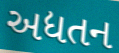
અદ્યતન